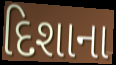
દિશાના